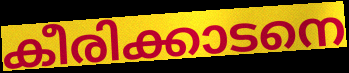
കീരിക്കാടനെ